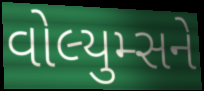
વોલ્યુમ્સને